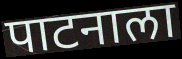
पाटनाला